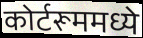
कोर्टरूममध्ये